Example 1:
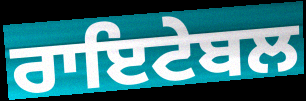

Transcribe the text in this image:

ਰਾਇਟੇਬਲ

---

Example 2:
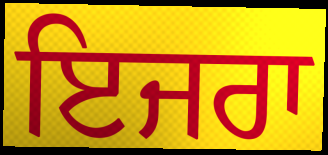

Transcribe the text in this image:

ਇਜਰਾ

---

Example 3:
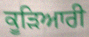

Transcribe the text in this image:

ਕੂੜਿਆਰੀ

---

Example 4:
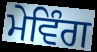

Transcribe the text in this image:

ਮੇਵਿੰਗ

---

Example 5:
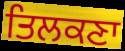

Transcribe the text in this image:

ਤਿਲਕਣਾ